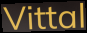
Vittal